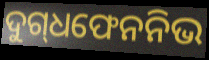
ଦୁଗ୍‍ଧଫେନନିଭ